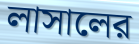
লাসালের